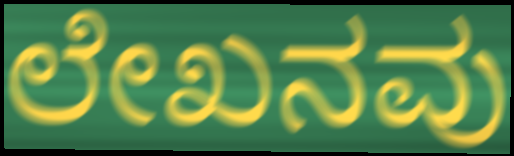
ಲೇಖನವು